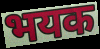
भयक